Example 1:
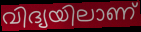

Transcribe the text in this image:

വിദ്യയിലാണ്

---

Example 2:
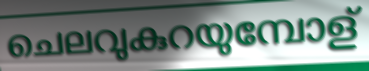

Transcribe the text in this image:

ചെലവുകുറയുമ്പോള്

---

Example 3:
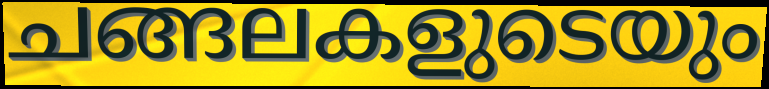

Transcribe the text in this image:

ചങ്ങലകളുടെയും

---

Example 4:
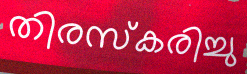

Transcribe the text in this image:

തിരസ്കരിച്ചു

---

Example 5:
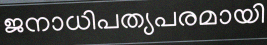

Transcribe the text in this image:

ജനാധിപത്യപരമായി